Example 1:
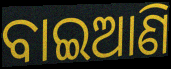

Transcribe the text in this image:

ବାଇଆଣି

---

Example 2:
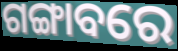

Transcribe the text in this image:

ଗଙ୍ଗାବରେ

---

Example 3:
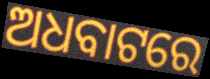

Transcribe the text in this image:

ଅଧବାଟରେ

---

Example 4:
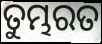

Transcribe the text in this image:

ତୁମ୍ଭରତ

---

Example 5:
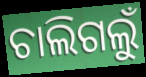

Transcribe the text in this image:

ଚାଲିଗଲୁଁ